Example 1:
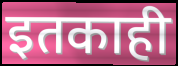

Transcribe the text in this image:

इतकाही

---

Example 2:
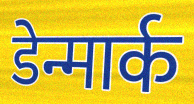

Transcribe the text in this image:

डेन्मार्क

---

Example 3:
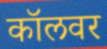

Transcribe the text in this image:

कॉलवर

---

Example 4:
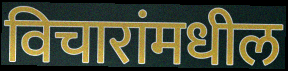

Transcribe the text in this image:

विचारांमधील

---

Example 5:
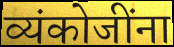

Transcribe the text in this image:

व्यंकोजींना